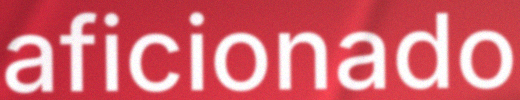
aficionado